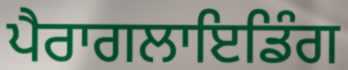
ਪੈਰਾਗਲਾਇਡਿੰਗ